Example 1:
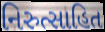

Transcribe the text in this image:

નિરુત્સાહિત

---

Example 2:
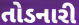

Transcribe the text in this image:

તોડનારી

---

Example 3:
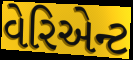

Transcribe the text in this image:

વેરિએન્ટ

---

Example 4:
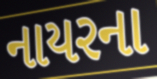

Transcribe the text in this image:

નાયરના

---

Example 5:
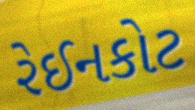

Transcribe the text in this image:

રેઈનકોટ